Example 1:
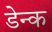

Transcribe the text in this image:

डेन्क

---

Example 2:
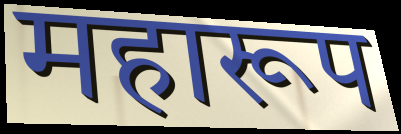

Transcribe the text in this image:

महारूप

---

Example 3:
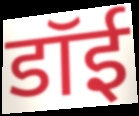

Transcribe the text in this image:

डॉई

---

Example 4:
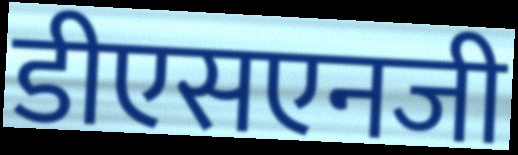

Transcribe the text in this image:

डीएसएनजी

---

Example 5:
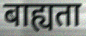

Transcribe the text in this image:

बाह्यता